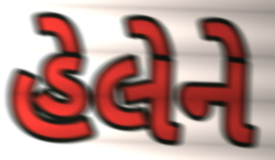
હેલેને